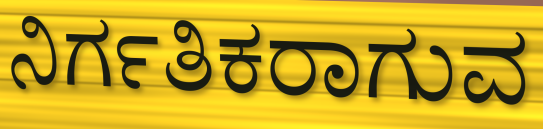
ನಿರ್ಗತಿಕರಾಗುವ